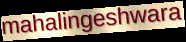
mahalingeshwara